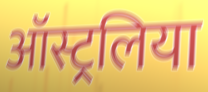
ऑस्ट्रलिया